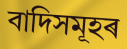
বাদিসমূহৰ